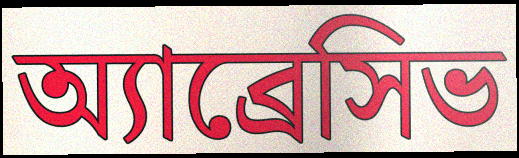
অ্যাব্রেসিভ